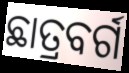
ଛାତ୍ରବର୍ଗ